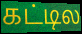
கட்டில